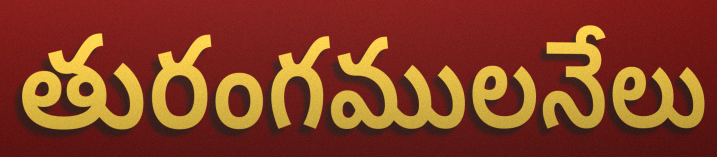
తురంగములనేలు